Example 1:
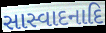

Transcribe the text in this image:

સાસ્વાદનાદિ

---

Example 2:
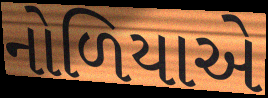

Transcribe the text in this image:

નોળિયાએ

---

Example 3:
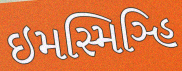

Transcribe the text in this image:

ઇમસ્મિઞ્હિ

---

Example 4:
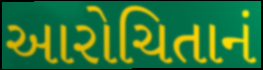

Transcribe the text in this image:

આરોચિતાનં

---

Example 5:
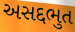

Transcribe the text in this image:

અસદ્દભુત